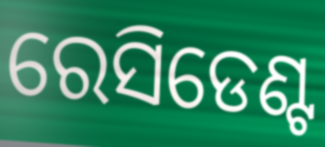
ରେସିଡେଣ୍ଟ